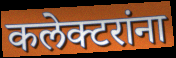
कलेक्टरांना